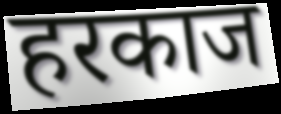
हरकाज